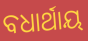
ବଧାର୍ଥାୟ